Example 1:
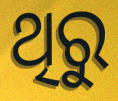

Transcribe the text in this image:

ଥିରୁ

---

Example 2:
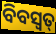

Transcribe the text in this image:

ବିବସ୍ଵତ୍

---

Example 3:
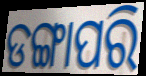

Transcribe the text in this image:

ଡଙ୍ଗାପରି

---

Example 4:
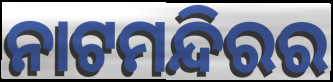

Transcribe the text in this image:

ନାଟମନ୍ଦିରର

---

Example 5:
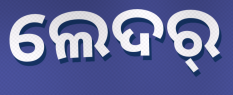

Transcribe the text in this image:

ଲେଦର୍